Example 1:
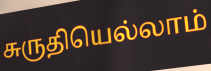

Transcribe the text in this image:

சுருதியெல்லாம்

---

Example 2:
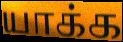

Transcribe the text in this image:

யாக்க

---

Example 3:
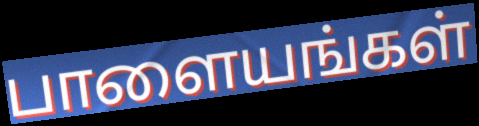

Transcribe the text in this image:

பாளையங்கள்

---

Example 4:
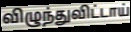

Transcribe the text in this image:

விழுந்துவிட்டாய்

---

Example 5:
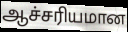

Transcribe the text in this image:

ஆச்சரியமான